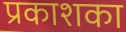
प्रकाशका